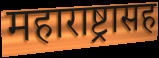
महाराष्ट्रासह